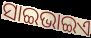
ସାଇଭାଇଏ